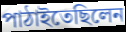
পাঠাইতেছিলেন